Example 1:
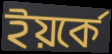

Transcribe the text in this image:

ইয়র্কে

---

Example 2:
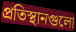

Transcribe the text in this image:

প্রতিস্থানগুলো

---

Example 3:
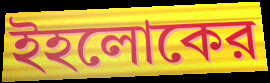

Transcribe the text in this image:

ইহলোকের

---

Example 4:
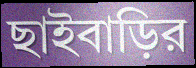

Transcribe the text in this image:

ছাইবাড়ির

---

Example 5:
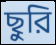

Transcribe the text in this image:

ছুরি